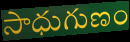
సాధుగుణం